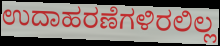
ಉದಾಹರಣೆಗಳಿರಲಿಲ್ಲ